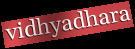
vidhyadhara